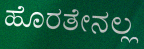
ಹೊರತೇನಲ್ಲ